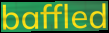
baffled